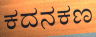
ಕದನಕಣ